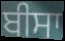
ਬੀਸਾ